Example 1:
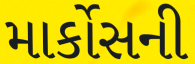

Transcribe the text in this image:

માર્કોસની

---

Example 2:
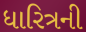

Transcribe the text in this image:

ધારિત્રની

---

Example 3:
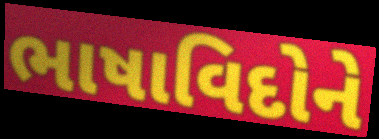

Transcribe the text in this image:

ભાષાવિદોને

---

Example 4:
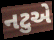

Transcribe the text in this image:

નટુએ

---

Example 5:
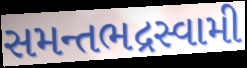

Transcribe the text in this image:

સમન્તભદ્રસ્વામી